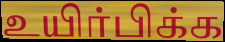
உயிர்பிக்க